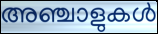
അഞ്ചാളുകൾ